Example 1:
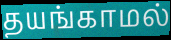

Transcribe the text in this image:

தயங்காமல்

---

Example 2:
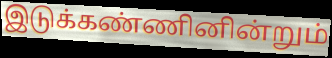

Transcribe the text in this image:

இடுக்கண்ணினின்றும்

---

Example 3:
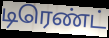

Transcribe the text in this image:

டிரெண்ட்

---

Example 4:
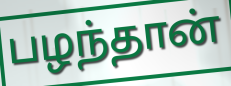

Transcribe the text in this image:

பழந்தான்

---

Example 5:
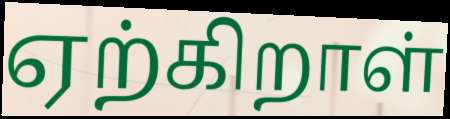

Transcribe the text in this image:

ஏற்கிறாள்